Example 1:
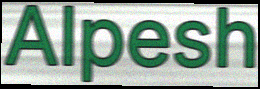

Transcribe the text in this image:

Alpesh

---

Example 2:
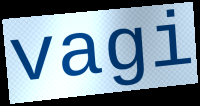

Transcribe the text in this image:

vagi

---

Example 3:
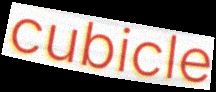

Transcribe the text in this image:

cubicle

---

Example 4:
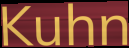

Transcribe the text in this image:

Kuhn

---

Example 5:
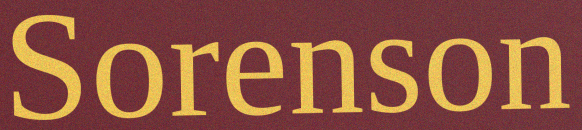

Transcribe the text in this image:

Sorenson